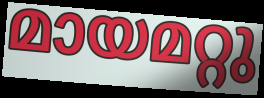
മായമറ്റു